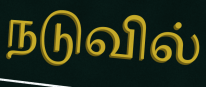
நடுவில்